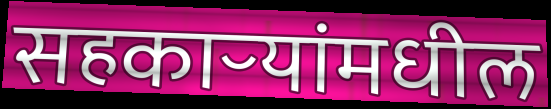
सहकाऱ्यांमधील